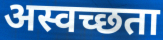
अस्वच्छता